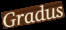
Gradus